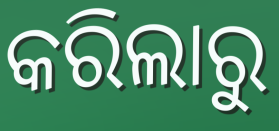
କରିଲାରୁ